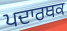
ਪਦਾਰਥਕ